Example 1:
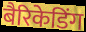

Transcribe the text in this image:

बैरिकेडिंग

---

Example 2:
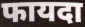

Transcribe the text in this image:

फायदा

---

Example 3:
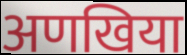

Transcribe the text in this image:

अणखिया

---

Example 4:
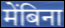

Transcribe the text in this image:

मेंबिना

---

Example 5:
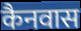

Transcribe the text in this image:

कैनवास